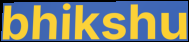
bhikshu